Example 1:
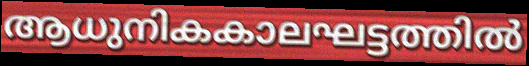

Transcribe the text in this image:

ആധുനികകാലഘട്ടത്തിൽ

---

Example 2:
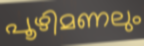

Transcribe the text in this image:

പൂഴിമണലും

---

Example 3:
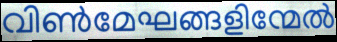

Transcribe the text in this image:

വിൺമേഘങ്ങളിന്മേൽ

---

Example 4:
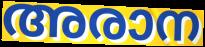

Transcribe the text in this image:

അരാന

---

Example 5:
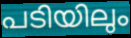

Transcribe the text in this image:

പടിയിലും